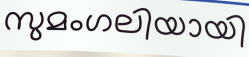
സുമംഗലിയായി